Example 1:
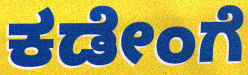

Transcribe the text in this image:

ಕಡೇಂಗೆ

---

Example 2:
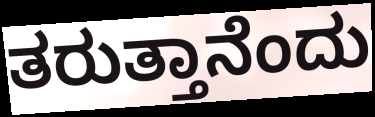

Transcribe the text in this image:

ತರುತ್ತಾನೆಂದು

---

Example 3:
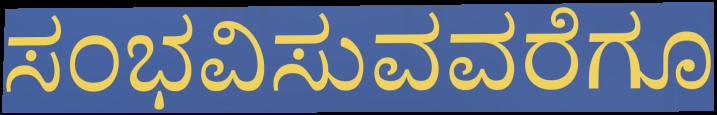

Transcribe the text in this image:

ಸಂಭವಿಸುವವರೆಗೂ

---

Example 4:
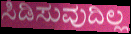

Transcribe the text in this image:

ಸಿಡಿಸುವುದಿಲ್ಲ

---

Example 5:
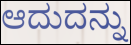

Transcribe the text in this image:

ಆದುದನ್ನು